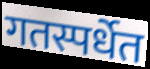
गतस्पर्धेत